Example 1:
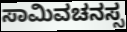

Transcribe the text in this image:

ಸಾಮಿವಚನಸ್ಸ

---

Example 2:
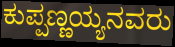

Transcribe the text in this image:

ಕುಪ್ಪಣ್ಣಯ್ಯನವರು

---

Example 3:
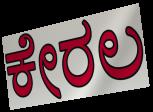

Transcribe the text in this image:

ಕೇರಲ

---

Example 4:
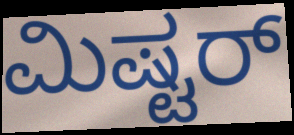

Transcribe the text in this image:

ಮಿಷ್ಟರ್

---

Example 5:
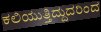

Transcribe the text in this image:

ಕಲಿಯುತ್ತಿದ್ದುದರಿಂದ